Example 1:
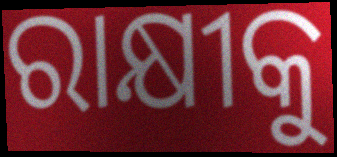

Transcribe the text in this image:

ରାକ୍ଷୀକୁ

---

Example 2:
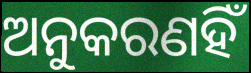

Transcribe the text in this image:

ଅନୁକରଣହିଁ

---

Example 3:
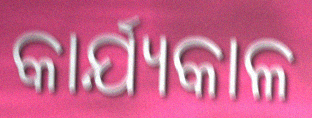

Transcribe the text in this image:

କାର୍ଯ୍ୟକାଳ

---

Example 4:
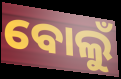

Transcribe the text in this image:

ବୋଲୁଁ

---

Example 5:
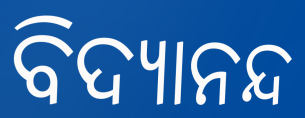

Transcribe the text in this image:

ବିଦ୍ୟାନନ୍ଦ